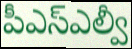
పీఎస్ఎల్వీ